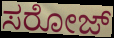
ಸರೋಜ್